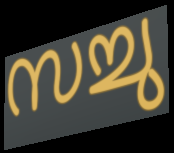
സച്ചു